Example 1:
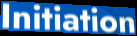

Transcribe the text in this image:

Initiation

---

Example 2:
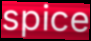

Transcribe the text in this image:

spice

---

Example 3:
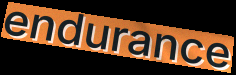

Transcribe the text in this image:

endurance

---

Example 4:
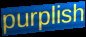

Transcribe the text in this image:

purplish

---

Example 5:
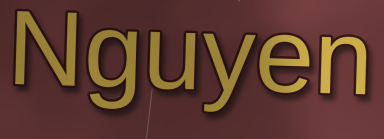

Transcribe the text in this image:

Nguyen